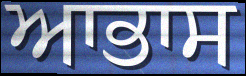
ਆਭਾਸ